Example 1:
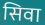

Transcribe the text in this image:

सिवा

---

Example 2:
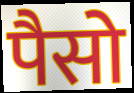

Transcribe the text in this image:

पैसो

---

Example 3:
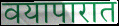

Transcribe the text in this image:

वयापारात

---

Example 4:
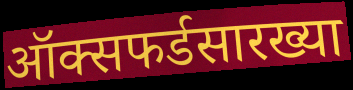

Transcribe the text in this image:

ऑक्सफर्डसारख्या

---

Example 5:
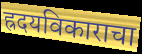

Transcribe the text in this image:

ह्रदयविकाराचा